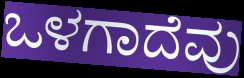
ಒಳಗಾದೆವು